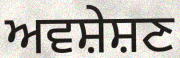
ਅਵਸ਼ੇਸ਼ਣ